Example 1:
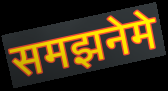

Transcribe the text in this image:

समझनेमे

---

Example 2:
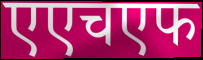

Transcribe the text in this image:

एएचएफ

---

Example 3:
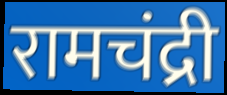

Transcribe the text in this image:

रामचंद्री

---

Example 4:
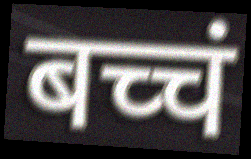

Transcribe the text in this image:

बच्चं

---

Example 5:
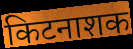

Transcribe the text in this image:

किटनाशक